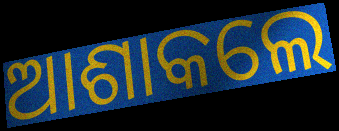
ଆଶାକଲେ